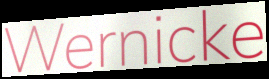
Wernicke